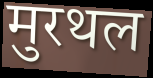
मुरथल